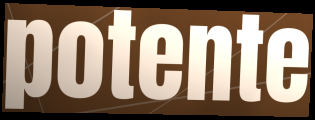
potente